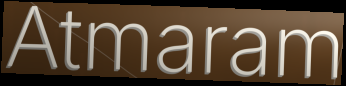
Atmaram